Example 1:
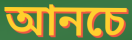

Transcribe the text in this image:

আনচে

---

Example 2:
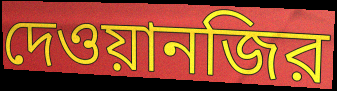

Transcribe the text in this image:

দেওয়ানজির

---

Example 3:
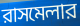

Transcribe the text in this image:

রাসমেলার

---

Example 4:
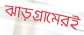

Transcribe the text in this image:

ঝাড়গ্রামেরই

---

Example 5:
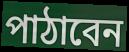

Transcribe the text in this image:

পাঠাবেন